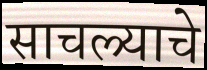
साचल्याचे